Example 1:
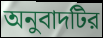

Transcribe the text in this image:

অনুবাদটির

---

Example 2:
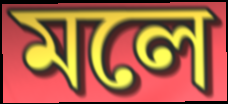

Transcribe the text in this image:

মলে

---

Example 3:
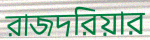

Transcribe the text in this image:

রাজদরিয়ার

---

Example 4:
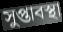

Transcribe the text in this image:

সুপ্তাবস্থা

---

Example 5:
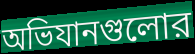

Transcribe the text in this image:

অভিযানগুলোর